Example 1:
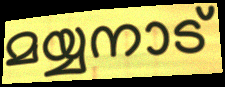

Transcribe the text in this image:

മയ്യനാട്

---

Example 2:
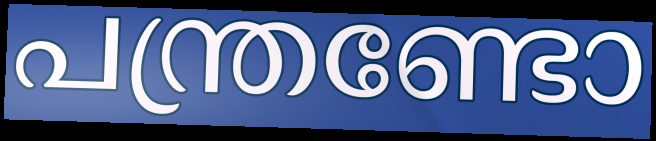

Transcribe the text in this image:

പന്ത്രണ്ടോ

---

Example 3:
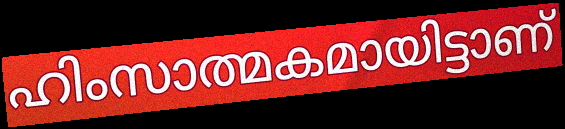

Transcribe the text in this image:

ഹിംസാത്മകമായിട്ടാണ്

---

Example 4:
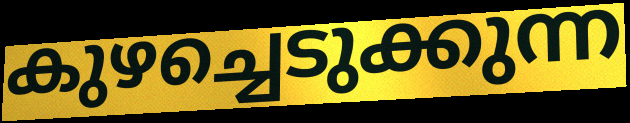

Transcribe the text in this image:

കുഴച്ചെടുക്കുന്ന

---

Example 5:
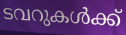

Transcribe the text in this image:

ടവറുകൾക്ക്